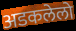
अडकलेलो